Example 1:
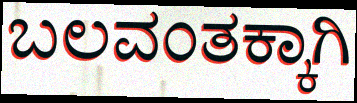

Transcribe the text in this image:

ಬಲವಂತಕ್ಕಾಗಿ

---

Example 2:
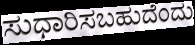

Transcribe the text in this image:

ಸುಧಾರಿಸಬಹುದೆಂದು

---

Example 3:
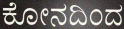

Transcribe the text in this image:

ಕೋನದಿಂದ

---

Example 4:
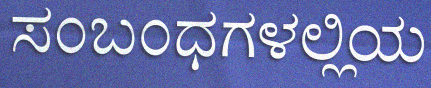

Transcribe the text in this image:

ಸಂಬಂಧಗಳಲ್ಲಿಯ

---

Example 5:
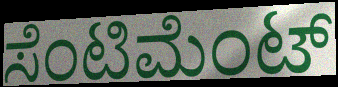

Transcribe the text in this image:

ಸೆಂಟಿಮೆಂಟ್